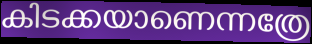
കിടക്കയാണെന്നത്രേ